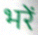
भरें